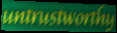
untrustworthy